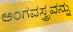
ಅಂಗವಸ್ತ್ರವನ್ನು